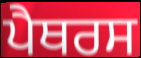
ਪੈਥਰਸ